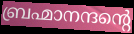
ബ്രഹ്മാനന്ദന്റെ